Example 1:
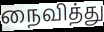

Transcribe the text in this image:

நைவித்து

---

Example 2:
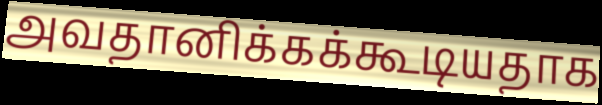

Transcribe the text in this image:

அவதானிக்கக்கூடியதாக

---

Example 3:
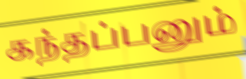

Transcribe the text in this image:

கந்தப்பனும்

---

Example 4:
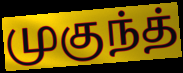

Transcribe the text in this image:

முகுந்த்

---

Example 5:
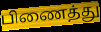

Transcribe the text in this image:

பிணைத்து